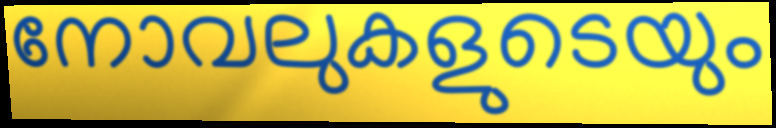
നോവലുകളുടെയും